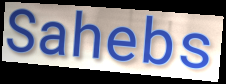
Sahebs